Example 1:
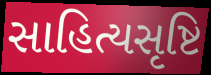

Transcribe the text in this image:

સાહિત્યસૃષ્ટિ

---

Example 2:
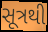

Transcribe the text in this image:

સૂત્રથી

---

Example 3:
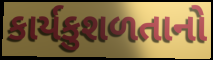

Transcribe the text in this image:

કાર્યકુશળતાનો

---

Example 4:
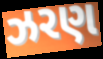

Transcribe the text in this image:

ઝરણ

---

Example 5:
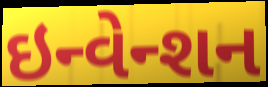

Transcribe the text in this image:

ઇન્વેન્શન